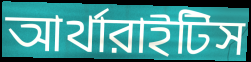
আর্থারাইটিস